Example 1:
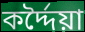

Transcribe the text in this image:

কৰ্দ্দৈয়া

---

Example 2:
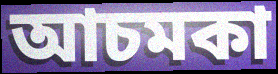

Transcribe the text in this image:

আচমকা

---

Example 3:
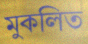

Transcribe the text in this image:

মুকলিত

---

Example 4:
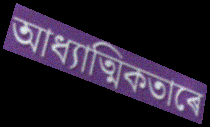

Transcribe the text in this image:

আধ্যাত্মিকতাৰে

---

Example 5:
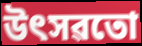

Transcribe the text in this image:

উৎসৱতো